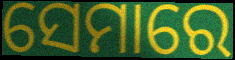
ସେମାରେ